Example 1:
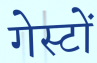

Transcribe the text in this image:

गेस्टों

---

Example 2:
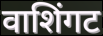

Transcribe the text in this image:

वाशिंगट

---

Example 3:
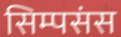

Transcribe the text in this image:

सिम्पसंस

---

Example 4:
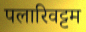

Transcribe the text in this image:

पलारिवट्टम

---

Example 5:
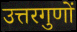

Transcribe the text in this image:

उत्तरगुणों